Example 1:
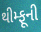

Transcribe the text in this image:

થીમ્ફૂની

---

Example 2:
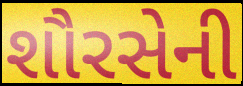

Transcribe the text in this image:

શૌરસેની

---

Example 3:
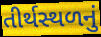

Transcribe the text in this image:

તીર્થસ્થળનું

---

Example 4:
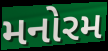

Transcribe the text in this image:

મનોરમ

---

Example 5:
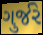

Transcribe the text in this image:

ગુર્જરે